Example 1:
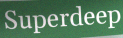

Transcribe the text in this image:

Superdeep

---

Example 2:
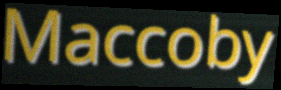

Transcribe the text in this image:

Maccoby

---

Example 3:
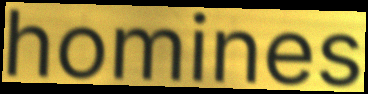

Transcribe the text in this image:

homines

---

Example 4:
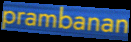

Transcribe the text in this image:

prambanan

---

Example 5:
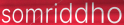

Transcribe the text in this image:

somriddho